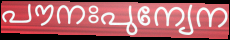
പൗനഃപുന്യേന